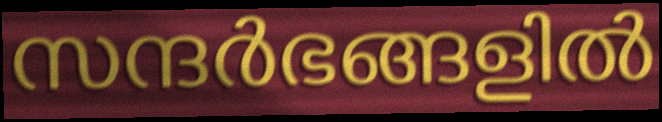
സന്ദർഭങ്ങളിൽ